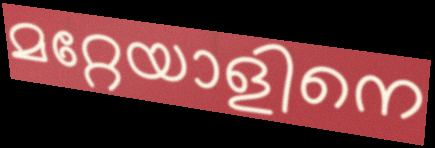
മറ്റേയാളിനെ